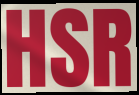
HSR